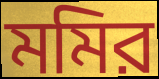
মমির